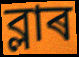
ব্লাৰ